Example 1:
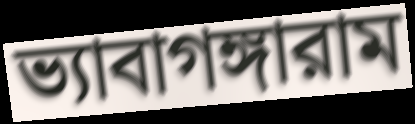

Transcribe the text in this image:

ভ্যাবাগঙ্গারাম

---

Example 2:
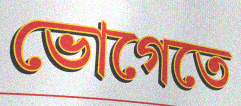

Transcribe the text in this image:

ভোগেতে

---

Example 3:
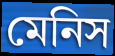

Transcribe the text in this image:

মেনিস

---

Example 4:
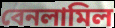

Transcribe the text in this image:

বেনলামিল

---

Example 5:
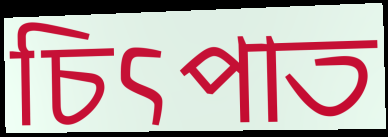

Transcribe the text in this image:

চিৎপাত